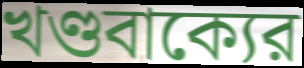
খণ্ডবাক্যের